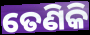
ତେଣିକି